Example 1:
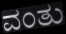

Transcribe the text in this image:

ವಂತು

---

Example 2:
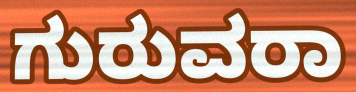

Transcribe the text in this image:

ಗುರುವರಾ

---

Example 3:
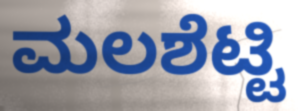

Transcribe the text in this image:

ಮಲಶೆಟ್ಟಿ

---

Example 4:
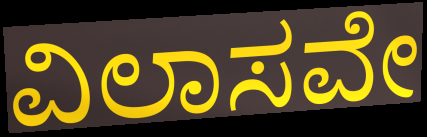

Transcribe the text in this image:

ವಿಲಾಸವೇ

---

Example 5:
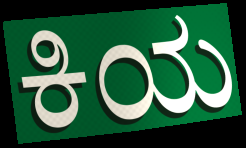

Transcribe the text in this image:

ಕಿಯ